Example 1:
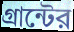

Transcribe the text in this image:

গ্রান্টের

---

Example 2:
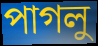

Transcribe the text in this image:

পাগলু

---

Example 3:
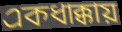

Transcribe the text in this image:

একধাক্কায়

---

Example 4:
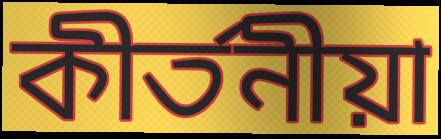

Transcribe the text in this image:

কীর্তনীয়া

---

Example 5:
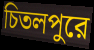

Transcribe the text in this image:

চিতলপুরে